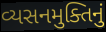
વ્યસનમુક્તિનું